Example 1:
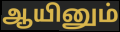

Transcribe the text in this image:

ஆயினும்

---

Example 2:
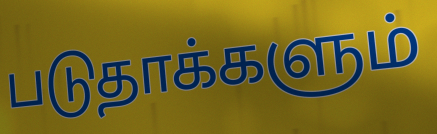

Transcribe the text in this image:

படுதாக்களும்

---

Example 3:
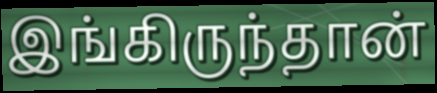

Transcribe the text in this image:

இங்கிருந்தான்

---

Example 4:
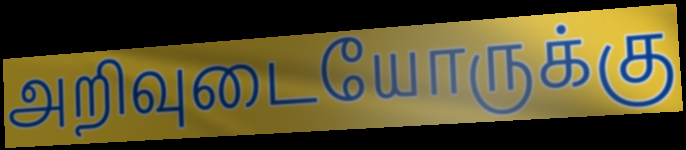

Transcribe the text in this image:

அறிவுடையோருக்கு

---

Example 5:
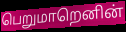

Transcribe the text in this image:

பெறுமாறெனின்